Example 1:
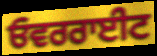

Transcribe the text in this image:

ਓਵਰਰਾਈਟ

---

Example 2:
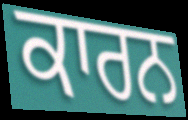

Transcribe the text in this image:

ਕਾਰਨ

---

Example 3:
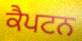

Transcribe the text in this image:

ਕੈਪਟਨ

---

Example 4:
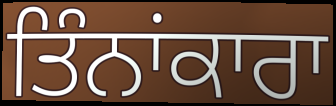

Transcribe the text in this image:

ਤਿੰਨਾਂਕਾਰਾ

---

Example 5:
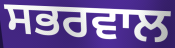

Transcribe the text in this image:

ਸਭਰਵਾਲ